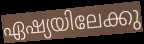
ഏഷ്യയിലേക്കു